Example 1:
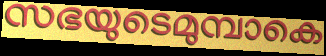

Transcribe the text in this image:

സഭയുടെമുമ്പാകെ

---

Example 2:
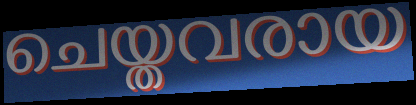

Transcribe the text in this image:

ചെയ്തവരായ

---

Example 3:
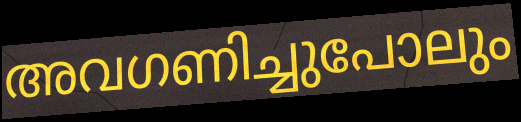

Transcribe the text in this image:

അവഗണിച്ചുപോലും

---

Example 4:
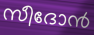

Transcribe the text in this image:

സീദോൻ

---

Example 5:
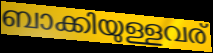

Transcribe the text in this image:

ബാക്കിയുള്ളവര്